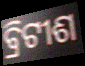
ବ୍ରିଟୀଶ